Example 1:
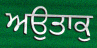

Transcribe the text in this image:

ਅਉਤਾਕੁ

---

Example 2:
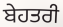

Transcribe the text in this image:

ਬੇਹਤਰੀ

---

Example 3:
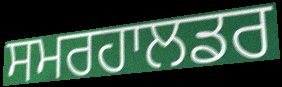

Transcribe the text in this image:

ਸਮਰਹਾਲਡਰ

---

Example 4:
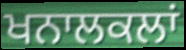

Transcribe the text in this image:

ਖਨਾਲਕਲਾਂ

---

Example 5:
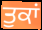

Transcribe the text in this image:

ਤੁਕਾਂ